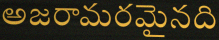
అజరామరమైనది